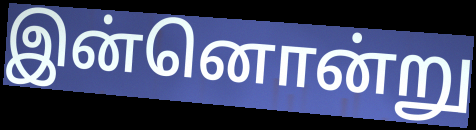
இன்னொன்று